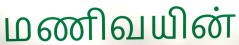
மணிவயின்